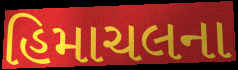
હિમાચલના